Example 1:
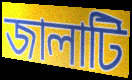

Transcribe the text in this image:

জালাটি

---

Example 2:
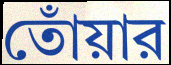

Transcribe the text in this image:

তোঁয়ার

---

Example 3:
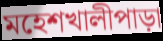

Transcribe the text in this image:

মহেশখালীপাড়া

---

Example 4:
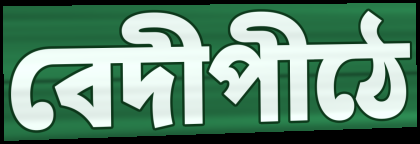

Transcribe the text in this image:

বেদীপীঠে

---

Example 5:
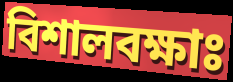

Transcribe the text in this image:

বিশালবক্ষাঃ